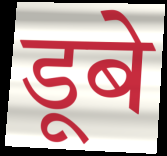
डूबे